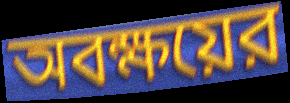
অবক্ষয়ের